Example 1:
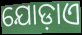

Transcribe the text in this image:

ଯୋଡ଼ାଏ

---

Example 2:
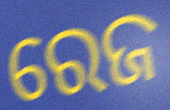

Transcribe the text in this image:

ରେଜ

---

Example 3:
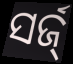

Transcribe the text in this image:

ସର୍ଜ୍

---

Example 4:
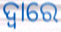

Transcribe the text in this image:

ଦ୍ବାରେ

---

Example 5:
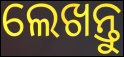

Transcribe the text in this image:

ଲେଖନ୍ତୁ